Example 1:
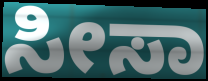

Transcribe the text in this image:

ಸೀಸಾ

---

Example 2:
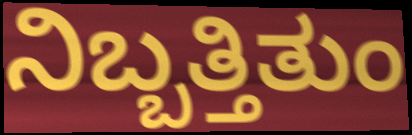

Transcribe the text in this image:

ನಿಬ್ಬತ್ತಿತುಂ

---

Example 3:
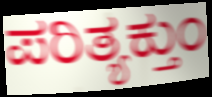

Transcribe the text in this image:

ಪರಿತ್ಯಕ್ತುಂ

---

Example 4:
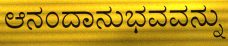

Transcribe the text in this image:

ಆನಂದಾನುಭವವನ್ನು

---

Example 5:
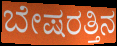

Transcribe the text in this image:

ಬೇಷರತ್ತಿನ